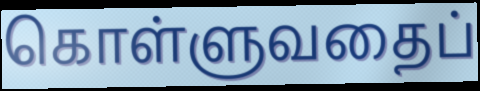
கொள்ளுவதைப்